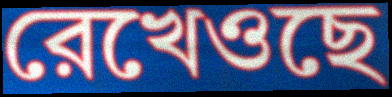
রেখেওছে